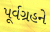
પૂર્વગ્રહને